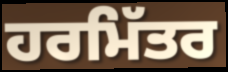
ਹਰਮਿੱਤਰ